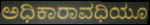
ಅಧಿಕಾರಾವಧಿಯೂ